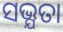
ସଭ୍ଯତା